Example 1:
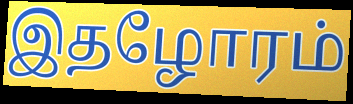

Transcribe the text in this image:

இதழோரம்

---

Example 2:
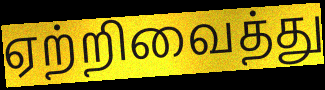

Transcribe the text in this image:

ஏற்றிவைத்து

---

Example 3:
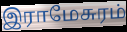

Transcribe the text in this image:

இராமேசுரம்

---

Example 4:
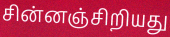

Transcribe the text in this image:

சின்னஞ்சிறியது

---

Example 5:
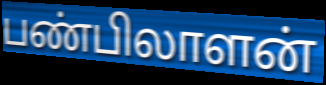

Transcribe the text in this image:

பண்பிலாளன்